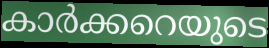
കാർക്കറെയുടെ